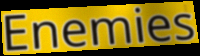
Enemies